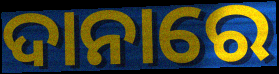
ଦାନାରେ